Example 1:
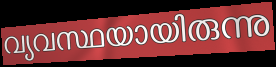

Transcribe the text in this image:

വ്യവസ്ഥയായിരുന്നു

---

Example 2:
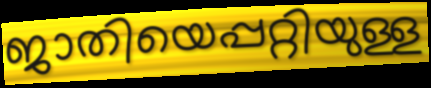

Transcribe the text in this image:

ജാതിയെപ്പറ്റിയുള്ള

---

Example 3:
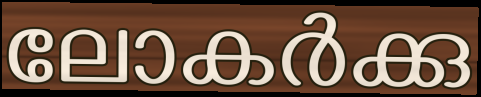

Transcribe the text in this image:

ലോകർക്കു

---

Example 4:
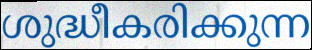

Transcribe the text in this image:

ശുദ്ധീകരിക്കുന്ന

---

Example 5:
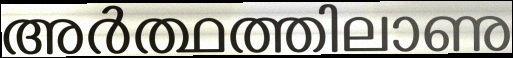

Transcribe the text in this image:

അർത്ഥത്തിലാണു